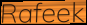
Rafeek